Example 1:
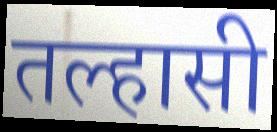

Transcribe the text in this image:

तल्हासी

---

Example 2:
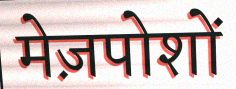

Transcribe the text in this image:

मेज़पोशों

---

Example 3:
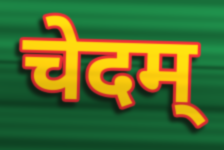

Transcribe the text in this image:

चेदम्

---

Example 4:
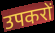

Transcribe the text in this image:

उपकरों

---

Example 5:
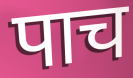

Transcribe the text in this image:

पाच